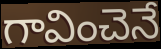
గావించెనే